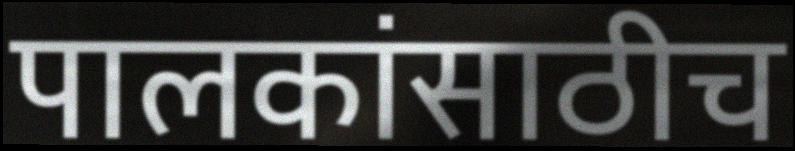
पालकांसाठीच